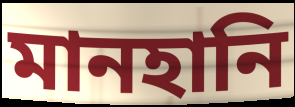
মানহানি